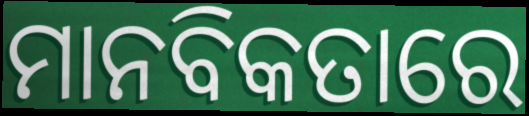
ମାନବିକତାରେ